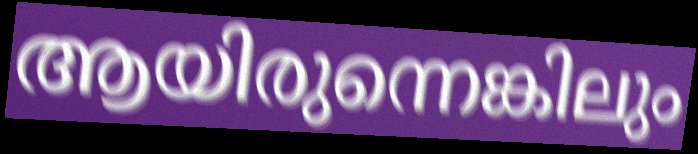
ആയിരുന്നെങ്കിലും